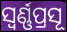
ସ୍ବର୍ଣ୍ଣପ୍ରସୂ